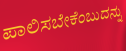
ಪಾಲಿಸಬೇಕೆಂಬುದನ್ನು